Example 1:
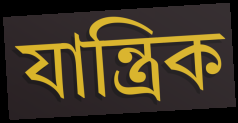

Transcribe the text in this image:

যান্ত্ৰিক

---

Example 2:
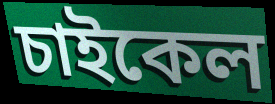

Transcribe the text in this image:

চাইকেল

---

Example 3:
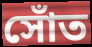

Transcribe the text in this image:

সোঁত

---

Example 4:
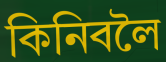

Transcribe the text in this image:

কিনিবলৈ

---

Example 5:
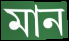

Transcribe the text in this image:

মান